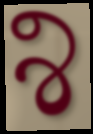
శి